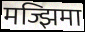
मज्झिमा